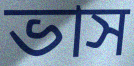
ভাস